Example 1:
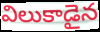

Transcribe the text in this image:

విలుకాడైన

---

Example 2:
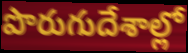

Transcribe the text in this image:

పొరుగుదేశాల్లో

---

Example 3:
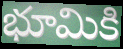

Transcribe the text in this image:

భూమికి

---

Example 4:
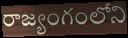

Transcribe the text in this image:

రాజ్యంగంలోని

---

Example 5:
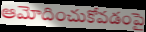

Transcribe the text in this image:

ఆమోదించుకోవడంపై